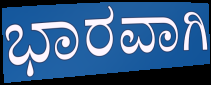
ಭಾರವಾಗಿ